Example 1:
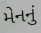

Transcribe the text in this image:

મેનનું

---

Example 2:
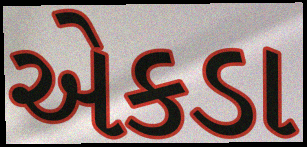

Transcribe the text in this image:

એકડા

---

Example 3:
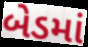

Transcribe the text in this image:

બેડમાં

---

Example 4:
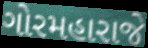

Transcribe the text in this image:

ગોરમહારાજે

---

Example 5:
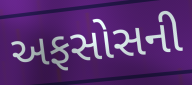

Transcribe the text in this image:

અફસોસની